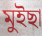
মুইছা